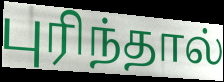
புரிந்தால்